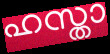
ഹസ്താ